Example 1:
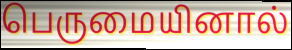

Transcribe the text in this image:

பெருமையினால்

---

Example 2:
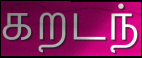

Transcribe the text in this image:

கறடந்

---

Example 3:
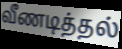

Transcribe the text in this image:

வீணடித்தல்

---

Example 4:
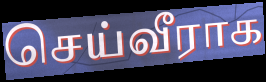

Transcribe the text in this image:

செய்வீராக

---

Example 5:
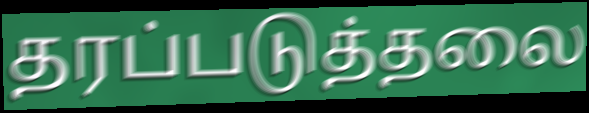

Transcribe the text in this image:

தரப்படுத்தலை